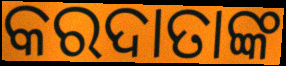
କରଦାତାଙ୍କ